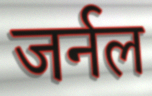
जर्नल